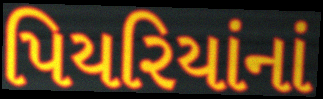
પિયરિયાંનાં